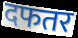
दफतर